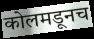
कोलमडूनच